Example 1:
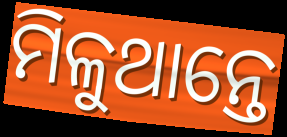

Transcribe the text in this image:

ମିଳୁଥାନ୍ତେ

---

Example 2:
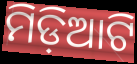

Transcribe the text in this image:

ମିଡ଼ିଆଟି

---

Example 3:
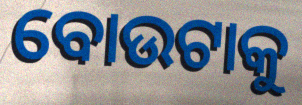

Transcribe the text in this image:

ବୋଉଟାକୁ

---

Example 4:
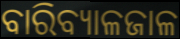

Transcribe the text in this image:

ବାରିବ୍ୟାଳଜାଳ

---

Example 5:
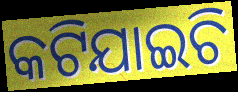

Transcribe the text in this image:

କଟିଯାଇଚି